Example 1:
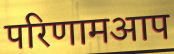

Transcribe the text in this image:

परिणामआप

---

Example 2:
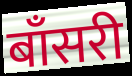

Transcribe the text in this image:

बाँसरी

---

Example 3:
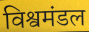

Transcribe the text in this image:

विश्वमंडल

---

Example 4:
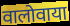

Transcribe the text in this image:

वालोवाया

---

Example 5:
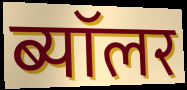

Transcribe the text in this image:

ब्यॉलर